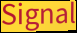
Signal